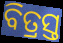
ବିତ୍ରସ୍ତ